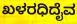
ಖಳರಧಿದೈವ